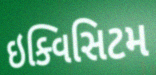
ઇક્વિસિટમ